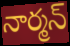
నార్మన్